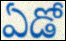
ఏడో